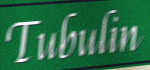
Tubulin